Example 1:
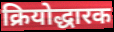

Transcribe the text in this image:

क्रियोद्धारक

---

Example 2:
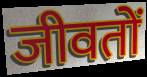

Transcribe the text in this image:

जीवतों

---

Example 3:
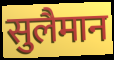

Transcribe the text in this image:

सुलैमान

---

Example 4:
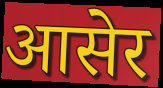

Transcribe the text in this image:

आसेर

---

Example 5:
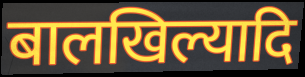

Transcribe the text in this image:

बालखिल्यादि